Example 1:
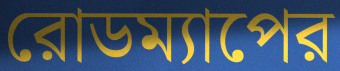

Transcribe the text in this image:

রোডম্যাপের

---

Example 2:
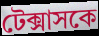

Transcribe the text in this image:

টেক্সাসকে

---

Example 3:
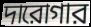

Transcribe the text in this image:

দারোগার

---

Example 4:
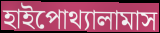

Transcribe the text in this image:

হাইপোথ্যালামাস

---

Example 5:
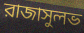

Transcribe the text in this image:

রাজাসুলভ